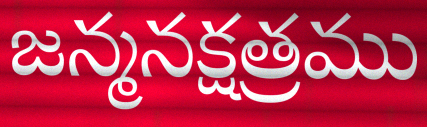
జన్మనక్షత్రము